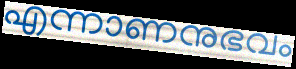
എന്നാണനുഭവം